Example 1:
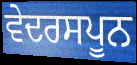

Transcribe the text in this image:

ਵੇਦਰਸਪੂਨ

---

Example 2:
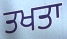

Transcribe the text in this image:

ਤਖਤਾ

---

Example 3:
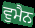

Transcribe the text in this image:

ਵੁਮੈਨ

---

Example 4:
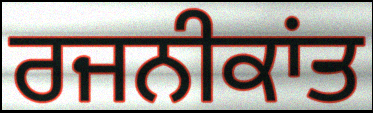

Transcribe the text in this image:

ਰਜਨੀਕਾਂਤ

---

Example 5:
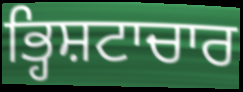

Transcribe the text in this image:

ਭ੍ਹਿਸ਼ਟਾਚਾਰ